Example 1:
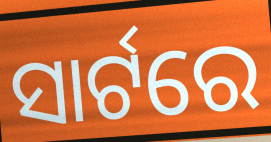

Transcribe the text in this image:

ସାର୍ଟରେ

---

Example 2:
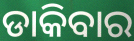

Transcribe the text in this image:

ଡାକିବାର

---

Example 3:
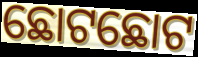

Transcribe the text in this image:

ଛୋଟଛୋଟ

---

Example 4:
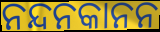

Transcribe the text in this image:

ନନ୍ଦନକାନନ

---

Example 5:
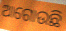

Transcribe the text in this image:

ଆଗୋଉଛି